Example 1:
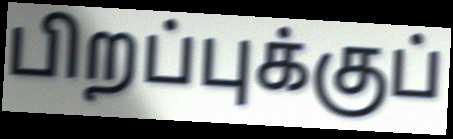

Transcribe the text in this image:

பிறப்புக்குப்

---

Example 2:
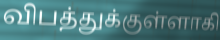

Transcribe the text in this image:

விபத்துக்குள்ளாகி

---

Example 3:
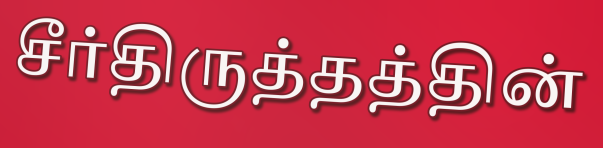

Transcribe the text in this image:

சீர்திருத்தத்தின்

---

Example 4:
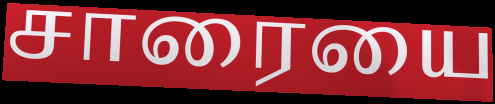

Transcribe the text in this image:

சாரையை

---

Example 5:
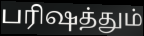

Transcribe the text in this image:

பரிஷத்தும்